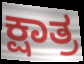
ಕ್ಷಾತ್ರ